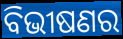
ବିଭୀଷଣର